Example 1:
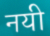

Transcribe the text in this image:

नयी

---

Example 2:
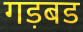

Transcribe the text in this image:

गड़बड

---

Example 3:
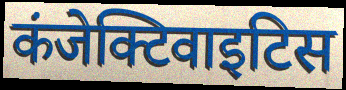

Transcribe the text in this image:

कंजेक्टिवाइटिस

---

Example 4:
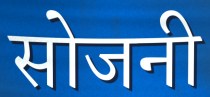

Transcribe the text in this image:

सोजनी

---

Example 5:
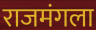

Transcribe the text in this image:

राजमंगला